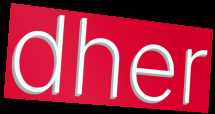
dher